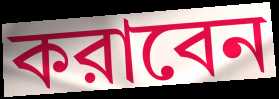
করাবেন